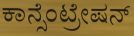
ಕಾನ್ಸೆಂಟ್ರೇಷನ್